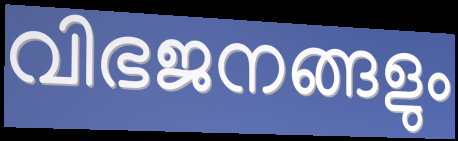
വിഭജനങ്ങളും